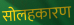
सोलहकारण